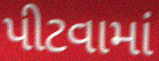
પીટવામાં